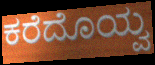
ಕರೆದೊಯ್ವ